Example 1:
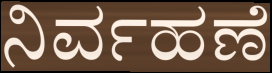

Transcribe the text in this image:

ನಿರ್ವಹಣೆ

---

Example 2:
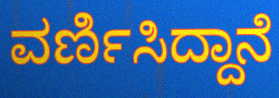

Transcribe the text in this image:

ವರ್ಣಿಸಿದ್ದಾನೆ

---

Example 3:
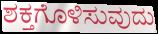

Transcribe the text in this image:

ಶಕ್ತಗೊಳಿಸುವುದು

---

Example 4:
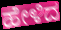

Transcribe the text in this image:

ಹೇಳಿದ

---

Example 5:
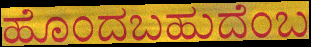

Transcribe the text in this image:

ಹೊಂದಬಹುದೆಂಬ